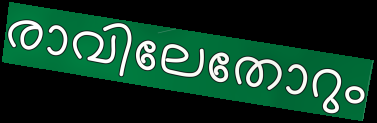
രാവിലേതോറും